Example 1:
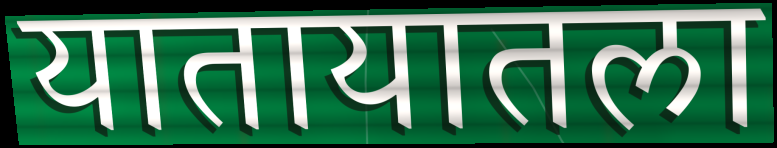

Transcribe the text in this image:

यातायातला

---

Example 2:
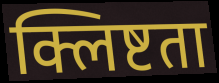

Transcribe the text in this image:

क्लिष्टता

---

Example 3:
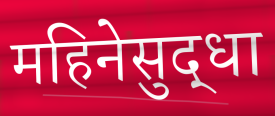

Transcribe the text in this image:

महिनेसुद्धा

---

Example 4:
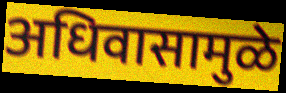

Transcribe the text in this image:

अधिवासामुळे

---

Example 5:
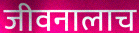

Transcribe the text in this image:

जीवनालाच